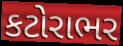
કટોરાભર